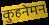
कुहनेमन